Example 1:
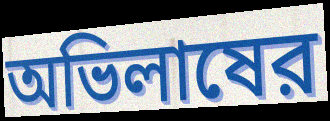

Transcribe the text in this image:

অভিলাষের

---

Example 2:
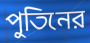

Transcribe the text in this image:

পুতিনের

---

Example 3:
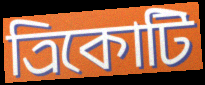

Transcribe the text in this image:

ত্রিকোটি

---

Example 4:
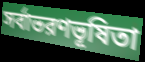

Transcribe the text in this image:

সর্বাভরণভূষিতা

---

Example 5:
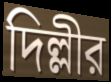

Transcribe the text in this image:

দিল্লীর